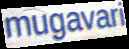
mugavari